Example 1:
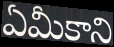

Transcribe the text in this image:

ఏమీకాని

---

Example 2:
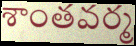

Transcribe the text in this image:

శాంతవర్మ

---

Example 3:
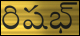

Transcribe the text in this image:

రిషభ్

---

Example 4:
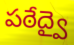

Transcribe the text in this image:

పఠేద్వై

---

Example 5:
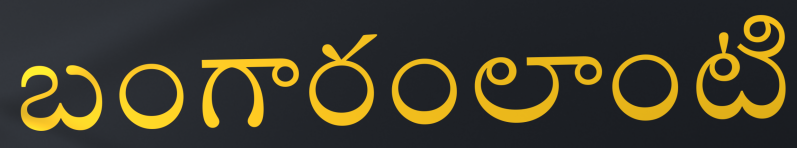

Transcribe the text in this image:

బంగారంలాంటి